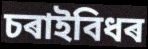
চৰাইবিধৰ